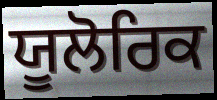
ਯੂਲੋਰਿਕ